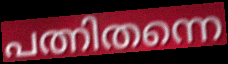
പത്നിതന്നെ